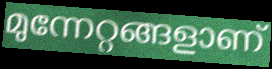
മുന്നേറ്റങ്ങളാണ്